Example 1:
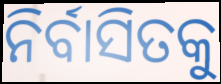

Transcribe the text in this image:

ନିର୍ବାସିତକୁ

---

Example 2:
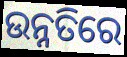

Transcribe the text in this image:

ଉନ୍ନତିରେ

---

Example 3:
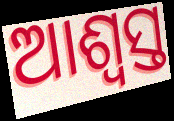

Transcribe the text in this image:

ଆଶ୍ୱସ୍ତ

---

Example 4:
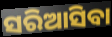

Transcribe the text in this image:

ସରିଆସିବା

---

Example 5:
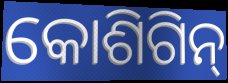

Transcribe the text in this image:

କୋଶିଗିନ୍